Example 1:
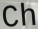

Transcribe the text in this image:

Ch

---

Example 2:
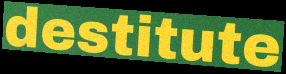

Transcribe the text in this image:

destitute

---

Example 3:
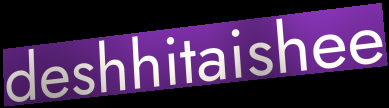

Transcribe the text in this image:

deshhitaishee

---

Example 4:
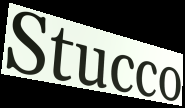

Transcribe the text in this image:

Stucco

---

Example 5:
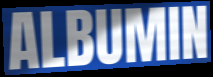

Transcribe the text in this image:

ALBUMIN